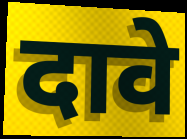
दावे